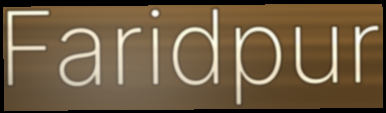
Faridpur